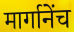
मार्गानेंच